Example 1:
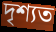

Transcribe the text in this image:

দৃশ্যত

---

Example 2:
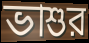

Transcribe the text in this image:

ভাশুর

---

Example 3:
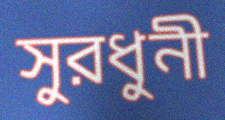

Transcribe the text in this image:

সুরধুনী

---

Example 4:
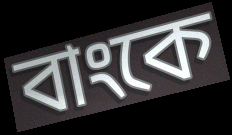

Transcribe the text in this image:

বাংকে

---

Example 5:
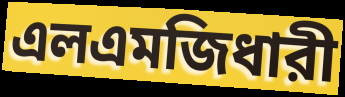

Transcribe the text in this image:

এলএমজিধারী